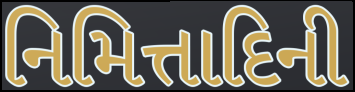
નિમિત્તાદિની